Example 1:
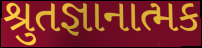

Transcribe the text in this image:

શ્રુતજ્ઞાનાત્મક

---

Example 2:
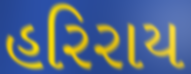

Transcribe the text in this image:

હરિરાય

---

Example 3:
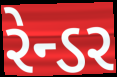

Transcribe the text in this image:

રેન્ડર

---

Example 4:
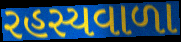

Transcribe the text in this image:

રહસ્યવાળા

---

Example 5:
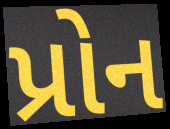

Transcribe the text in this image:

પ્રોન